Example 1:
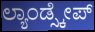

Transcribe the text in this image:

ಲ್ಯಾಂಡ್ಸ್ಕೇಪ್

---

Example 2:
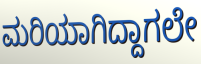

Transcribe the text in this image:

ಮರಿಯಾಗಿದ್ದಾಗಲೇ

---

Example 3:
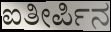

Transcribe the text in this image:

ಐತೀರ್ಪಿನ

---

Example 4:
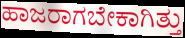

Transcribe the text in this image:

ಹಾಜರಾಗಬೇಕಾಗಿತ್ತು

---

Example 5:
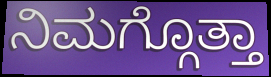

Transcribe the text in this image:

ನಿಮಗ್ಗೊತ್ತಾ